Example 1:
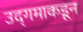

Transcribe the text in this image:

उद्‌गमाकडून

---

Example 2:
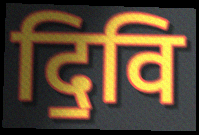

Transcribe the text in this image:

दि॒वि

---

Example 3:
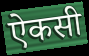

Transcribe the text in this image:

ऐकसी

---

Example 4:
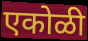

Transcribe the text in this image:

एकोळी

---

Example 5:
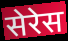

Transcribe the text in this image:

सेरेस